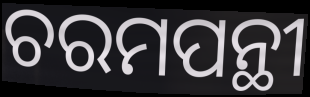
ଚରମପନ୍ଥୀ